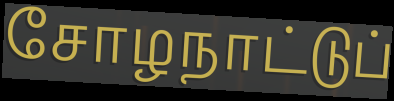
சோழநாட்டுப்